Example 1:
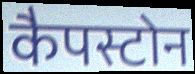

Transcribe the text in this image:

कैपस्टोन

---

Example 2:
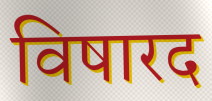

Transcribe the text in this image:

विषारद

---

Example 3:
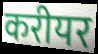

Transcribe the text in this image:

करीयर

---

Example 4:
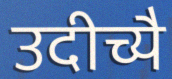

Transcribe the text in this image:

उदीच्यै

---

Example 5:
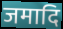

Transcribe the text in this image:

जमादि